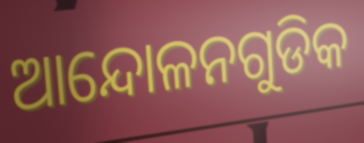
ଆନ୍ଦୋଳନଗୁଡିକ